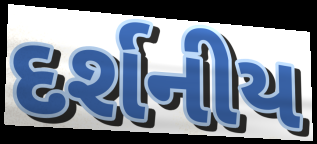
દર્શનીય